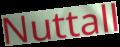
Nuttall